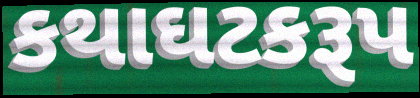
કથાઘટકરૂપ